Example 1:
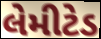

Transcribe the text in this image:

લેમીટેડ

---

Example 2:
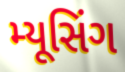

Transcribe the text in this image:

મ્યૂસિંગ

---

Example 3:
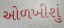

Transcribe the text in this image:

ઓળખીશું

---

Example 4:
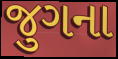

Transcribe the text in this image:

જુગના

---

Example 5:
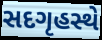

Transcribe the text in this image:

સદગૃહસ્થે